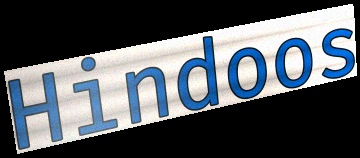
Hindoos